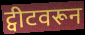
ट्वीटवरून